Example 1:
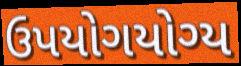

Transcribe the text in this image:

ઉપયોગયોગ્ય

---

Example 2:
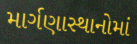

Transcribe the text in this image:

માર્ગણાસ્થાનોમાં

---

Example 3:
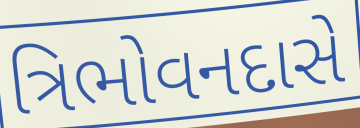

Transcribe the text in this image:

ત્રિભોવનદાસે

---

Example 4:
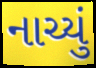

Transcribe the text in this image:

નાચ્યું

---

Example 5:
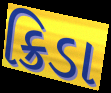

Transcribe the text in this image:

ક્રિડા